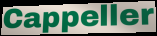
Cappeller